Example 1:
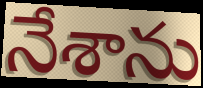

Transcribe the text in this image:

నేశాను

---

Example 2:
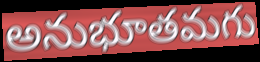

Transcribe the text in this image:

అనుభూతమగు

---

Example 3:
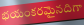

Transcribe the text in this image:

భయంకరమైనదిగా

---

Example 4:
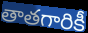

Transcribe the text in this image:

తాతగారికీ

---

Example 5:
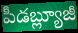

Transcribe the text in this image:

పీడబ్ల్యూజీ